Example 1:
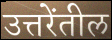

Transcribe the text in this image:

उत्तरेंतील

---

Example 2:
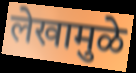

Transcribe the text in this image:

लेखामुळे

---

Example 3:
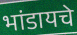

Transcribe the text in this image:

भांडायचे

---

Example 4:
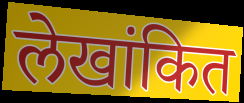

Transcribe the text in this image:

लेखांकित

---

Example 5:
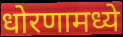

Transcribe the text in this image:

धोरणामध्ये